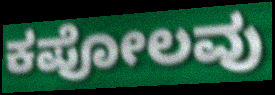
ಕಪೋಲವು